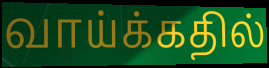
வாய்க்கதில்